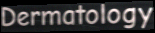
Dermatology